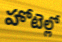
హోటెల్లో